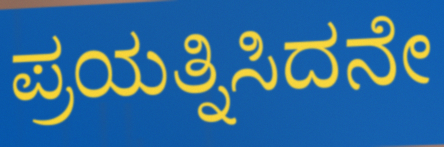
ಪ್ರಯತ್ನಿಸಿದನೇ